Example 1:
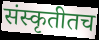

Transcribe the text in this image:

संस्कृतीतच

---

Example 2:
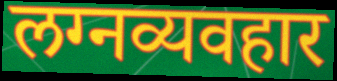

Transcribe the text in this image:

लग्नव्यवहार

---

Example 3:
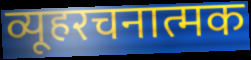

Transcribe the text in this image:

व्यूहरचनात्मक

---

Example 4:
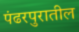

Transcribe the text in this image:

पंढरपुरातील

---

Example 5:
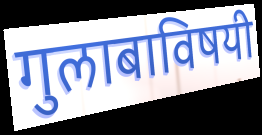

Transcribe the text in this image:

गुलाबाविषयी